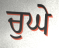
ਚੁਘੇ